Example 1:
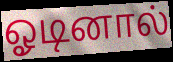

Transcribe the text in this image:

ஓடினால்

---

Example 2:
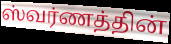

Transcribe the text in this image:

ஸ்வர்ணத்தின்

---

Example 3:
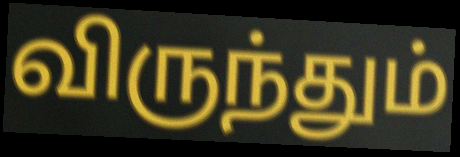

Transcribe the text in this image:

விருந்தும்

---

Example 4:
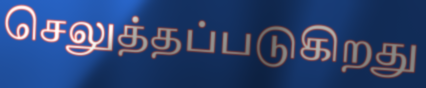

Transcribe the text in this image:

செலுத்தப்படுகிறது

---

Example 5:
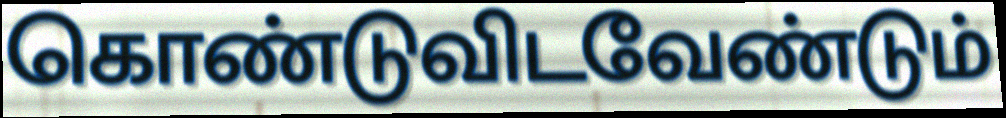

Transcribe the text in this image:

கொண்டுவிடவேண்டும்